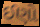
ઈણો